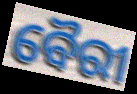
ବୈରୀ